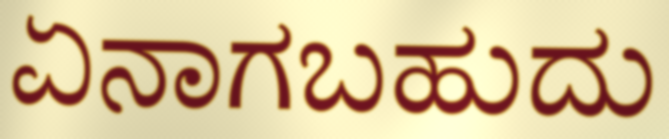
ಏನಾಗಬಹುದು